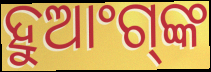
ହୁଆଂଗ୍‍ଙ୍କ